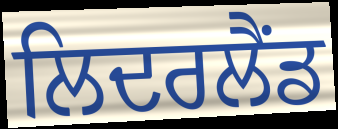
ਲਿਦਰਲੈਂਡ